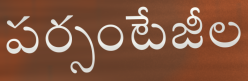
పర్సంటేజీల